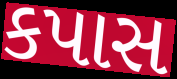
કપાસ